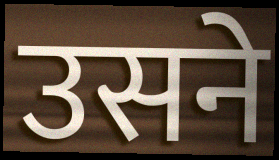
उसने